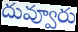
దువ్వూరు